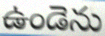
ఉండెను